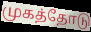
முகத்தோடு